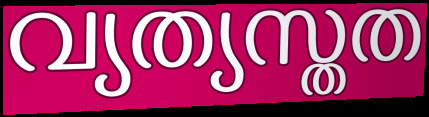
വ്യത്യസ്തത